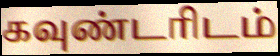
கவுண்டரிடம்